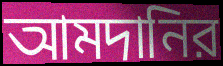
আমদানির